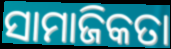
ସାମାଜିକତା